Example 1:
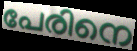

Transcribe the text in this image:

പേരിനെ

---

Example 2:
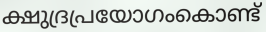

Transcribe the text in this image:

ക്ഷുദ്രപ്രയോഗംകൊണ്ട്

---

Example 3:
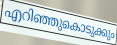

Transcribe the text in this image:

എറിഞ്ഞുകൊടുക്കും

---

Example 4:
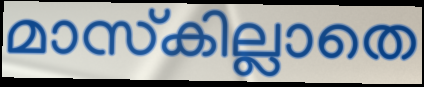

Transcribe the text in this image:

മാസ്‌കില്ലാതെ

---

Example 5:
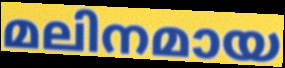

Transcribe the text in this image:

മലിനമായ